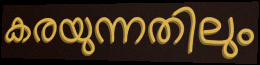
കരയുന്നതിലും